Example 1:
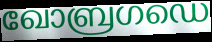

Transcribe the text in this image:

ഖോബ്രഗഡെ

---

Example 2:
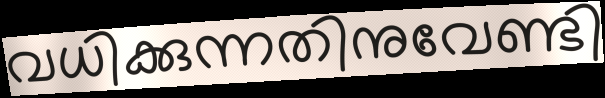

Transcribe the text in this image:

വധിക്കുന്നതിനുവേണ്ടി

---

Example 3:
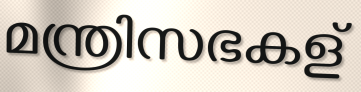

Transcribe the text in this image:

മന്ത്രിസഭകള്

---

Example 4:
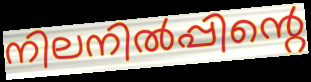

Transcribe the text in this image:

നിലനിൽപ്പിന്റെ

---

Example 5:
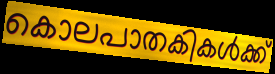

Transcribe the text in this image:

കൊലപാതകികൾക്ക്